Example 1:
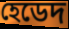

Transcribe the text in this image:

হেডেদ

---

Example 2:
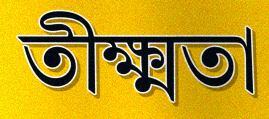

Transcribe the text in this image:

তীক্ষ্মতা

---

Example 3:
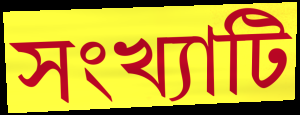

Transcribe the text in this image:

সংখ্যাটি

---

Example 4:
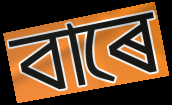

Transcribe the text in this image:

বাৰে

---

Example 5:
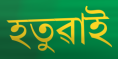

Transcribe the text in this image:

হতুৱাই